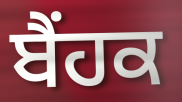
ਬੈਂਹਕ